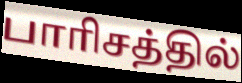
பாரிசத்தில்